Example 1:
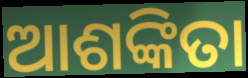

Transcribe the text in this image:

ଆଶଙ୍କିତା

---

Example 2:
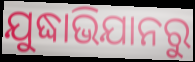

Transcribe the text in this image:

ଯୁଦ୍ଧାଭିଯାନରୁ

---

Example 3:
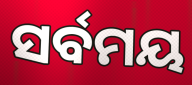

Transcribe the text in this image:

ସର୍ବମୟ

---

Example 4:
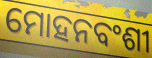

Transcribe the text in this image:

ମୋହନବଂଶୀ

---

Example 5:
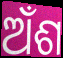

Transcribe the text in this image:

ଅଁଶ